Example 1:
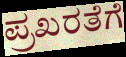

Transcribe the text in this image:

ಪ್ರಖರತೆಗೆ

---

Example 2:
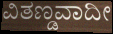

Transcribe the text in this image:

ವಿತಣ್ಡವಾದೀ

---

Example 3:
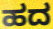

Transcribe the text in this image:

ಹದ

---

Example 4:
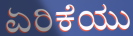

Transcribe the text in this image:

ಏರಿಕೆಯು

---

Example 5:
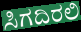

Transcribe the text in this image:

ಸಿಗದಿರಲಿ